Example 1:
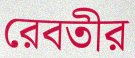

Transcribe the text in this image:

রেবতীর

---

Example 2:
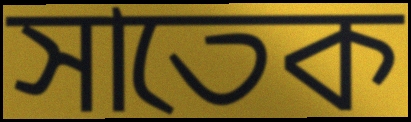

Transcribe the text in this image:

সাতেক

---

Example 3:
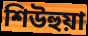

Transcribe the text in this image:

শিউহুয়া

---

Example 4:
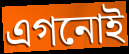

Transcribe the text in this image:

এগনোই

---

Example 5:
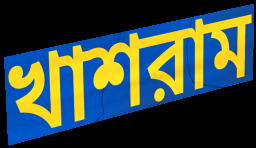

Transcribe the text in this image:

খাশরাম